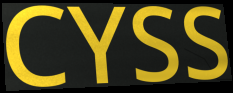
CYSS